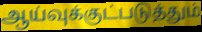
ஆய்வுக்குட்படுத்தும்